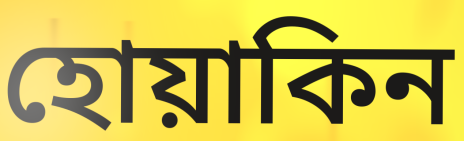
হোয়াকিন